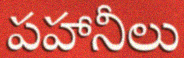
పహానీలు